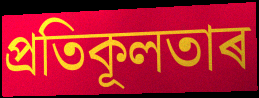
প্ৰতিকূলতাৰ